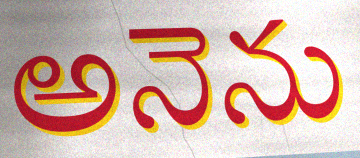
అనెను